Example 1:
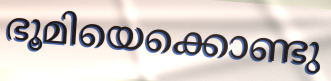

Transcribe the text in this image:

ഭൂമിയെക്കൊണ്ടു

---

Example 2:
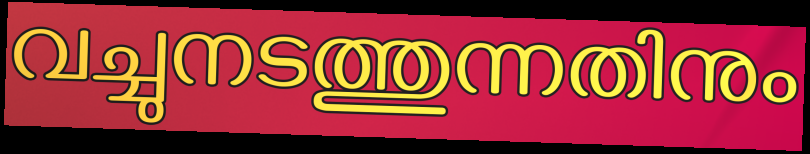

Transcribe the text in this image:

വച്ചുനടത്തുന്നതിനും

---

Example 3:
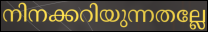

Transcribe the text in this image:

നിനക്കറിയുന്നതല്ലേ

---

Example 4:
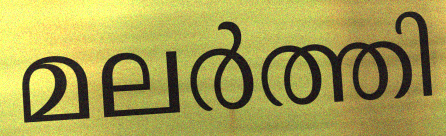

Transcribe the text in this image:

മലർത്തി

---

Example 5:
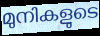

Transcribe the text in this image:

മുനികളുടെ